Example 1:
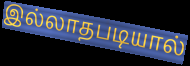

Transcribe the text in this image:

இல்லாதபடியால்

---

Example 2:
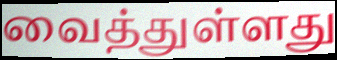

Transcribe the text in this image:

வைத்துள்ளது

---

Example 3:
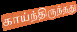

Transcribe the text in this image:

காய்ந்திருந்தது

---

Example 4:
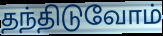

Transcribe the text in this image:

தந்திடுவோம்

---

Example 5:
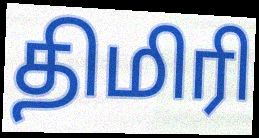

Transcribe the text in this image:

திமிரி